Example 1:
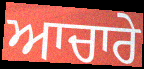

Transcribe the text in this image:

ਆਚਾਰੇ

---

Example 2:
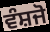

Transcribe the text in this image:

ਵੰਸ਼ਜੋ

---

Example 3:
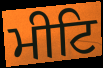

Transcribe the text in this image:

ਮੀਟਿ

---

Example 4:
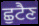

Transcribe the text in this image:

ਛੁਟੈਣ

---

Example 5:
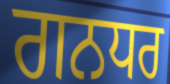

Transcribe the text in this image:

ਗਨਧਰ